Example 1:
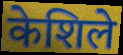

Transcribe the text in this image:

केशिले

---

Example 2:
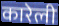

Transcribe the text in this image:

कारेली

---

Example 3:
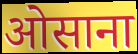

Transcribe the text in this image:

ओसाना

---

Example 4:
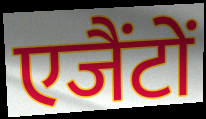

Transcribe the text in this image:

एजैंटों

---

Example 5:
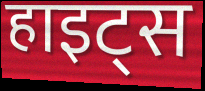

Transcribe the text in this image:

हाइट्स